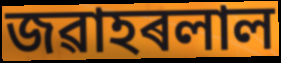
জৱাহৰলাল